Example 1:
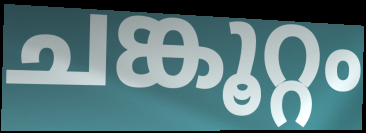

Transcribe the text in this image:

ചങ്കൂറ്റം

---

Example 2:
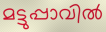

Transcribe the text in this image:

മട്ടുപ്പാവിൽ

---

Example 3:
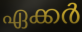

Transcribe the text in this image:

ഏക്കർ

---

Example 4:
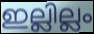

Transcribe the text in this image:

ഇല്ലില്ലം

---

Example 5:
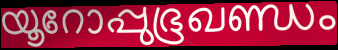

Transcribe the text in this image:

യൂറോപ്പുഭൂഖണ്ഡം